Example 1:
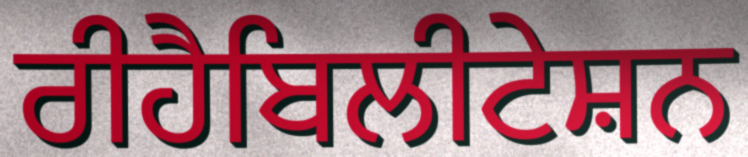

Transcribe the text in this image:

ਰੀਹੈਬਿਲੀਟੇਸ਼ਨ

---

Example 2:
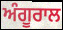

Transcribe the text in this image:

ਅੰਗੂਰਾਲ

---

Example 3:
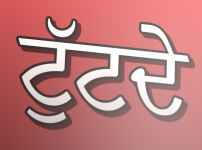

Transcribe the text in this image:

ਟੁੱਟਦੇ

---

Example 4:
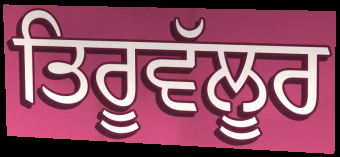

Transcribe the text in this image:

ਤਿਰੂਵੱਲੂਰ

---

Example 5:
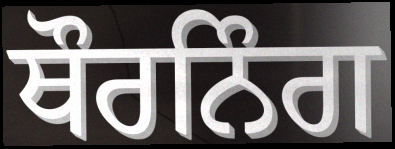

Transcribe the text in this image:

ਥੌਰਨਿੰਗ